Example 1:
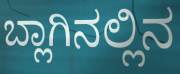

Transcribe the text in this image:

ಬ್ಲಾಗಿನಲ್ಲಿನ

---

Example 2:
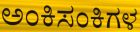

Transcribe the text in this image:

ಅಂಕಿಸಂಕಿಗಳ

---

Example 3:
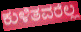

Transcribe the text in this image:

ಕುಳಿತವರೆಲ್ಲ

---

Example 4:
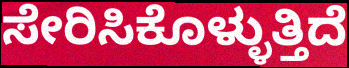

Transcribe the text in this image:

ಸೇರಿಸಿಕೊಳ್ಳುತ್ತಿದೆ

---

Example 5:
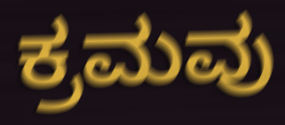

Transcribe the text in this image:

ಕ್ರಮವು